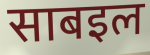
साबइल